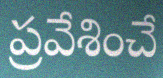
ప్రవేశించే